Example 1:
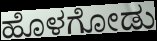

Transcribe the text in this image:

ಹೊಳಗೋಡು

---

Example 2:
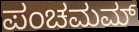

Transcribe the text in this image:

ಪಂಚಮಮ್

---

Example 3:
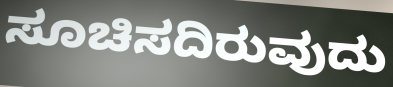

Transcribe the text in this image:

ಸೂಚಿಸದಿರುವುದು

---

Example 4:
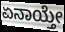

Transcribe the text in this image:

ಏನಾಯ್ತೇ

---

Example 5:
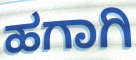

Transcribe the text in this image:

ಹಗಾಗಿ